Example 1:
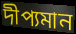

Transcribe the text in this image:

দীপ্যমান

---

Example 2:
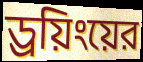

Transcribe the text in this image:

ড্রয়িংয়ের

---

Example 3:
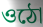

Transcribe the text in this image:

ওঠো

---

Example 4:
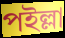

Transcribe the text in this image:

পইল্লা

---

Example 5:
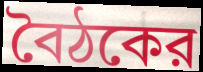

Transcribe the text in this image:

বৈঠকের